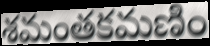
శమంతకమణిం